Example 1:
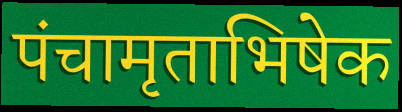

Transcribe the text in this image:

पंचामृताभिषेक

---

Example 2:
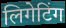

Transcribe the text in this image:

लिगेटिंग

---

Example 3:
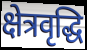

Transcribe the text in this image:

क्षेत्रवृद्धि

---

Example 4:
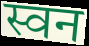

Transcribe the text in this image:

स्वन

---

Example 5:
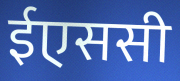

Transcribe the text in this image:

ईएससी